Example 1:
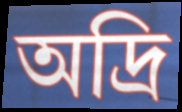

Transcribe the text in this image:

অদ্রি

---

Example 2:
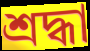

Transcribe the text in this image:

শ্রদ্ধা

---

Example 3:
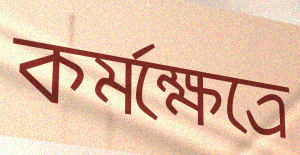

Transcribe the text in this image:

কর্মক্ষেত্রে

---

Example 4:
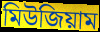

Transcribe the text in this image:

মিউজিয়াম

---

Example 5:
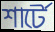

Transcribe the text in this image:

শার্টে